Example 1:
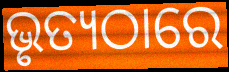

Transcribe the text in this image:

ଭୃତ୍ୟଠାରେ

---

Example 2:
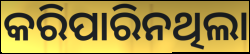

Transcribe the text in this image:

କରିପାରିନଥିଲା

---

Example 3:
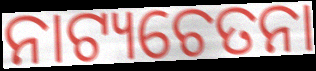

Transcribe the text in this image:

ନାଟ୍ୟଚେତନା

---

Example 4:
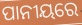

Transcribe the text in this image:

ପାନୀୟରେ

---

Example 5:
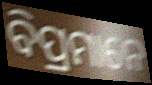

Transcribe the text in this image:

ବିପ୍ରମାନେ